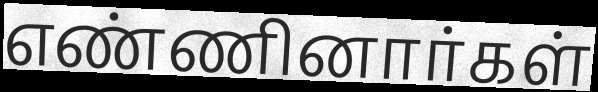
எண்ணினார்கள்